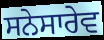
ਸਨੇਸਾਰੇਵ